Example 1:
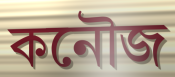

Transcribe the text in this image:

কনৌজ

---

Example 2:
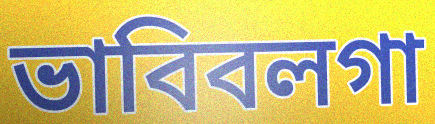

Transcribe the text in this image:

ভাবিবলগা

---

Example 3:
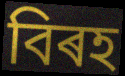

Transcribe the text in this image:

বিৰহ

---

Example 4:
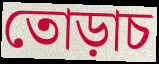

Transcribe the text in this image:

তোড়াচ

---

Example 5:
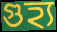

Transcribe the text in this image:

গুহ্য